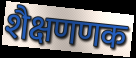
शैक्षणणक